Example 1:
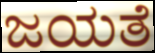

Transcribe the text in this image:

ಜಯತೆ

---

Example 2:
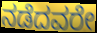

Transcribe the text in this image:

ನಡೆದವರೇ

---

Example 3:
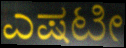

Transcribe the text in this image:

ಎಷಟೀ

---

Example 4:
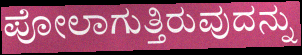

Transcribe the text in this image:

ಪೋಲಾಗುತ್ತಿರುವುದನ್ನು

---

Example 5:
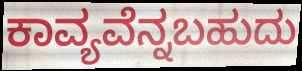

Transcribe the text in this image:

ಕಾವ್ಯವೆನ್ನಬಹುದು